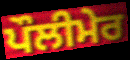
ਪੌਲੀਮੇਰ